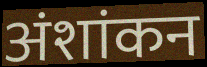
अंशांकन